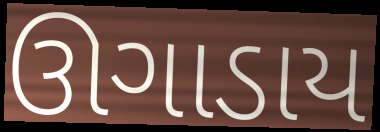
ઊગાડાય